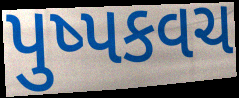
પુષ્પકવચ